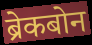
ब्रेकबोन